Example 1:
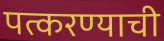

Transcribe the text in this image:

पत्करण्याची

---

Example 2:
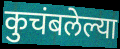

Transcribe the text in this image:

कुचंबलेल्या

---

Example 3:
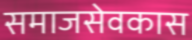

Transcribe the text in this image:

समाजसेवकास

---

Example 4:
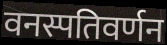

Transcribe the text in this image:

वनस्पतिवर्णन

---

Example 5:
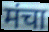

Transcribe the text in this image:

मंचा